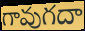
గావుగదా